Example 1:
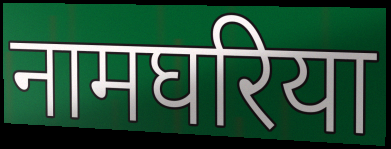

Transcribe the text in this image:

नामघरिया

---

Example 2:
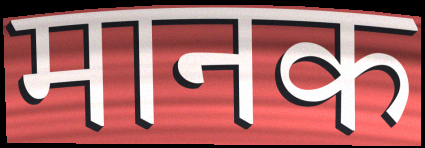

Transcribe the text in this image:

मानक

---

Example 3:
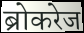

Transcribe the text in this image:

ब्रोकरेज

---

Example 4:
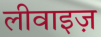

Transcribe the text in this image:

लीवाइज़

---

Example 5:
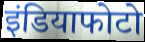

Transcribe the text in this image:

इंडियाफोटो